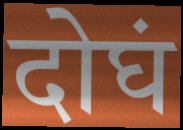
दोघं